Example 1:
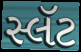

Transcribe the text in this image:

સ્લૅટ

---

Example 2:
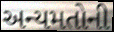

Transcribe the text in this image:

અન્યમતોની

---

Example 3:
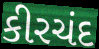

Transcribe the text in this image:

કીરચંદ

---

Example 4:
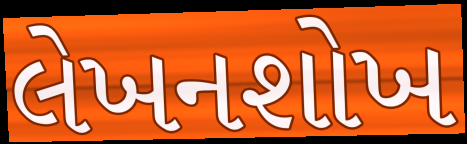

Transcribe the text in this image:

લેખનશોખ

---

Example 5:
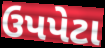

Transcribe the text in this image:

ઉપપેટા